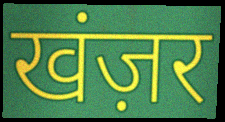
खंज़र